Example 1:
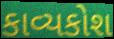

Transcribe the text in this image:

કાવ્યકોશ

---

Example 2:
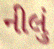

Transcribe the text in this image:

નીલું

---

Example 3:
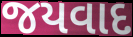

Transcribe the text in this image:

જયવાદ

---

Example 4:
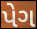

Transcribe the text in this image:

પેગ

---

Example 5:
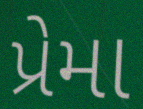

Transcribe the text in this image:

પ્રેમા